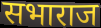
सभाराज